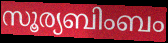
സൂര്യബിംബം